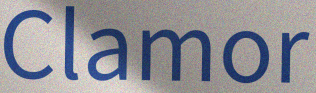
Clamor